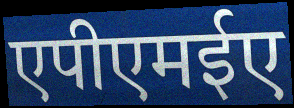
एपीएमईए